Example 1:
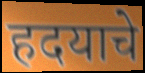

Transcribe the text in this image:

हदयाचे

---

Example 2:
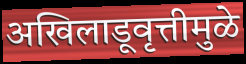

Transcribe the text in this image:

अखिलाडूवृत्तीमुळे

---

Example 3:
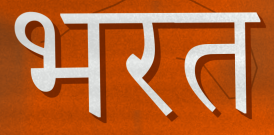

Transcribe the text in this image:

भरत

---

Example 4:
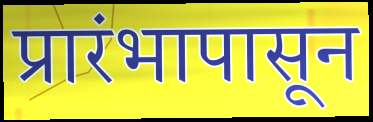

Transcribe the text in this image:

प्रारंभापासून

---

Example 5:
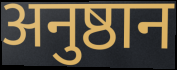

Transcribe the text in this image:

अनुष्ठान